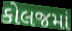
કોલજમાં